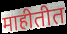
माहीतीत